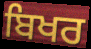
ਬਿਖਰ